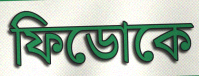
ফিডোকে